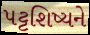
પટ્ટશિષ્યને